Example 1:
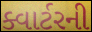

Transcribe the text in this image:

ક્વાર્ટરની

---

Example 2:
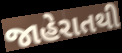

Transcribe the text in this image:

જાહેરાતથી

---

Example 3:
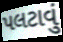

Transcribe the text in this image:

પલટાવું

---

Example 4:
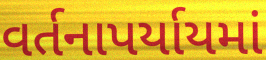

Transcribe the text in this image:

વર્તનાપર્યાયમાં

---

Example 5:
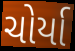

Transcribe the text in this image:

ચોર્યા